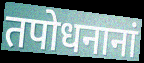
तपोधनानां